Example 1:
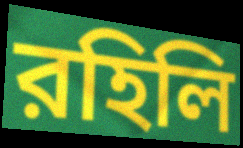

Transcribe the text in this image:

রহিলি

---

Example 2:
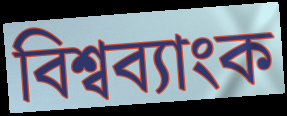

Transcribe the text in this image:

বিশ্বব্যাংক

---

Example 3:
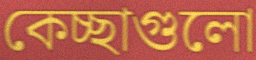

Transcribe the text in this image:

কেচ্ছাগুলো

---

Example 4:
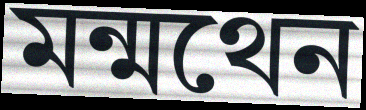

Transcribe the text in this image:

মন্মথেন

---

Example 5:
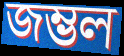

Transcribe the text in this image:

জম্ভল